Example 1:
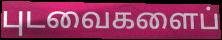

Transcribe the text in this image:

புடவைகளைப்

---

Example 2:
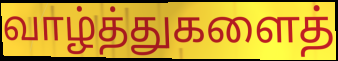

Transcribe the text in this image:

வாழ்த்துகளைத்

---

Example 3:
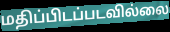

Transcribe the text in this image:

மதிப்பிடப்படவில்லை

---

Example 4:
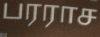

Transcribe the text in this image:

பரராச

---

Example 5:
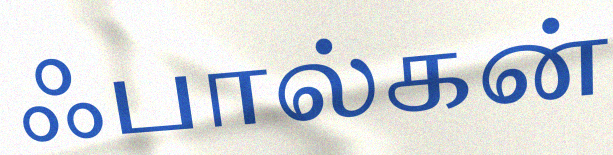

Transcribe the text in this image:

ஃபால்கன்